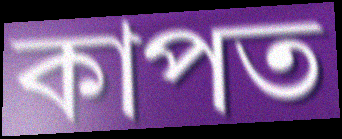
কাপত